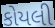
કોયલી